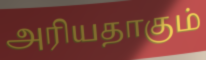
அரியதாகும்